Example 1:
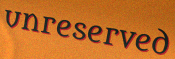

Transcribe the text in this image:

unreserved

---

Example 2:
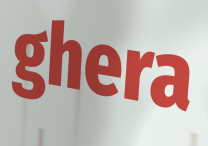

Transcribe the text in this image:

ghera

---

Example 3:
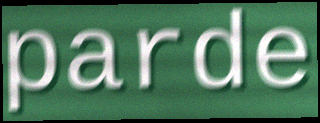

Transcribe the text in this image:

parde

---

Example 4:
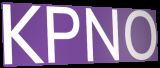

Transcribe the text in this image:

KPNO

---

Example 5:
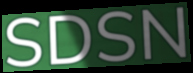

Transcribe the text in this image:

SDSN